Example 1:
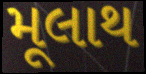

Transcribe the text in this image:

મૂલાથ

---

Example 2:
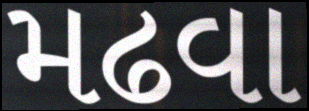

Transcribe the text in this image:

મઢવા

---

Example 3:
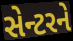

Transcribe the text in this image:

સેન્ટરને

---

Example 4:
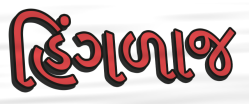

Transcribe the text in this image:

હિંગળાજ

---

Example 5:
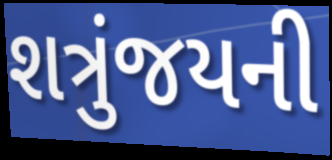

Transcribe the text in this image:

શત્રુંજયની